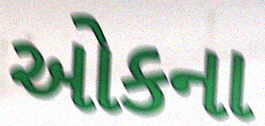
ઓકના